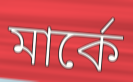
মাৰ্কে